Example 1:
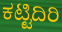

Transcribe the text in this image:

ಕಟ್ಟಿದಿರಿ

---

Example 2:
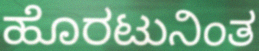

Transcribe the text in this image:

ಹೊರಟುನಿಂತ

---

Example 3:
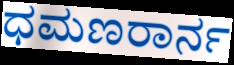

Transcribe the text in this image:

ಧಮಣರಾರ್ನ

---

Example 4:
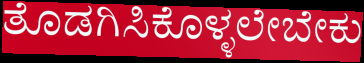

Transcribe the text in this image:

ತೊಡಗಿಸಿಕೊಳ್ಳಲೇಬೇಕು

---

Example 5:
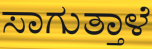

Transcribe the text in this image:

ಸಾಗುತ್ತಾಳೆ